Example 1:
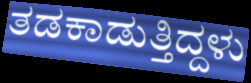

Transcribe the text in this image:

ತಡಕಾಡುತ್ತಿದ್ದಳು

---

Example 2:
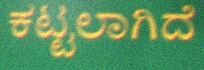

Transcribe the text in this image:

ಕಟ್ಟಲಾಗಿದೆ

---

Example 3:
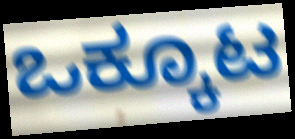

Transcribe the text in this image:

ಒಕ್ಕೂಟ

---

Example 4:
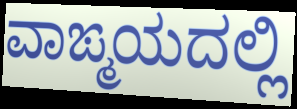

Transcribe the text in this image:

ವಾಙ್ಮಯದಲ್ಲಿ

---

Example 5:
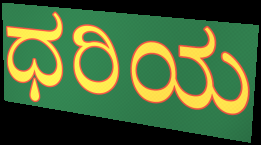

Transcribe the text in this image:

ಧರಿಯ